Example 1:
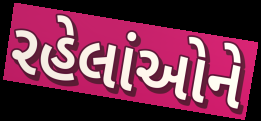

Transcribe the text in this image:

રહેલાંઓને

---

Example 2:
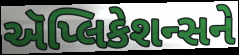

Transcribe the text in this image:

ઍપ્લિકેશન્સને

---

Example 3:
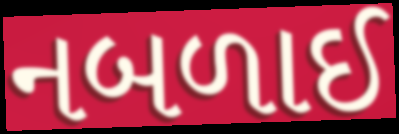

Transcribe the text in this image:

નબળાઈ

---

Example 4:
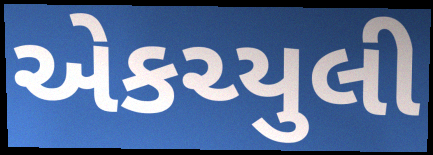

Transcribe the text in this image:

એકચ્યુલી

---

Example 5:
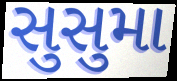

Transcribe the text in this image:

સુસુમા